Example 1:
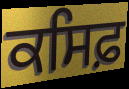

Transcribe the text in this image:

ਕਸਿਫ਼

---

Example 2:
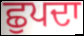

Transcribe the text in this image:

ਛੁਪਦਾ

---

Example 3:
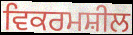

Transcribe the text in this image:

ਵਿਕਰਮਸ਼ੀਲ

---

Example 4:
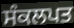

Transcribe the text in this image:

ਸੰਕਲਪਤ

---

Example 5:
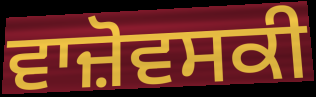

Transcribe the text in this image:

ਵਾਜ਼ੋਵਸਕੀ